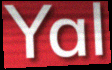
Yal